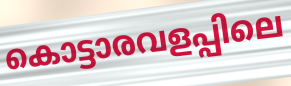
കൊട്ടാരവളപ്പിലെ